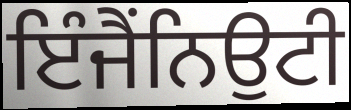
ਇੰਜੈਂਨਿਉਟੀ